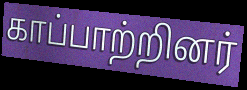
காப்பாற்றினர்